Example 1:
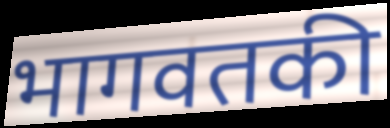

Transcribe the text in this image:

भागवतकी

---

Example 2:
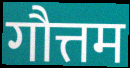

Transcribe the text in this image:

गौत्तम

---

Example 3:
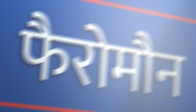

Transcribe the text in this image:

फैरोमौन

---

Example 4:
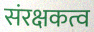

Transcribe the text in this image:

संरक्षकत्व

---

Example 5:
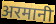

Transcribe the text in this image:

अरमानी